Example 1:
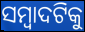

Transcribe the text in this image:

ସମ୍ୱାଦଟିକୁ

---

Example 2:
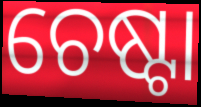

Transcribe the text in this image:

ଚେଷ୍ଟା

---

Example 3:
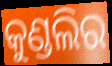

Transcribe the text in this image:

କୁଣ୍ଡଲିର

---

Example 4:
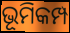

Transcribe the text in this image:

ଭୂମିକମ୍ପ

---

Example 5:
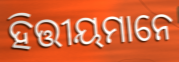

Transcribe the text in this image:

ହିତ୍ତୀୟମାନେ